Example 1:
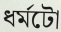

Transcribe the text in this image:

ধৰ্মটো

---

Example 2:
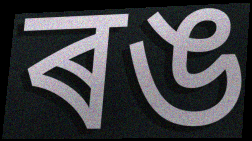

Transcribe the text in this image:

ৰঙ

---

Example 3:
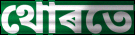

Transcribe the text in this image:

থোৰতে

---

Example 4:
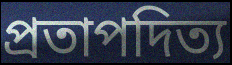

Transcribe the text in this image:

প্ৰতাপদিত্য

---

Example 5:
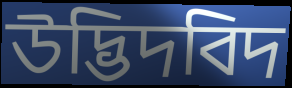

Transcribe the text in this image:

উদ্ভিদবিদ